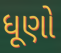
ધૂણો